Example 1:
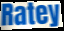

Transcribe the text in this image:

Ratey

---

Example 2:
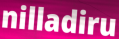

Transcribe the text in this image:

nilladiru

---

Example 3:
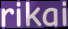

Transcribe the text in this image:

rikai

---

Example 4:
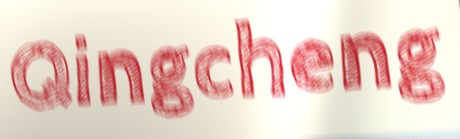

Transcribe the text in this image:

Qingcheng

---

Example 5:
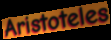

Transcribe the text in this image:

Aristoteles